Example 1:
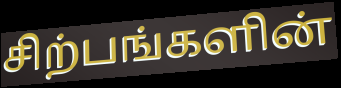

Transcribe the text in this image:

சிற்பங்களின்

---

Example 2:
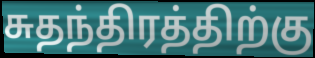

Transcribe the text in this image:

சுதந்திரத்திற்கு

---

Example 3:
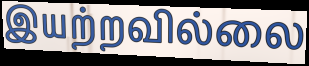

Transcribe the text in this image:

இயற்றவில்லை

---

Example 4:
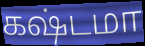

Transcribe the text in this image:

கஷ்டமா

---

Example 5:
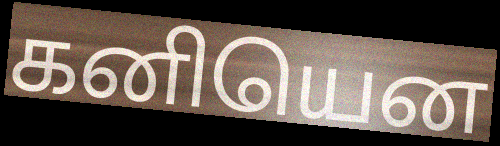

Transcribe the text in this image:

கனியென